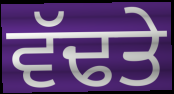
ਵੱਢਤੇ